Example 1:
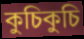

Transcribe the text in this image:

কুচিকুচি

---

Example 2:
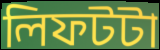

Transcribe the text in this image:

লিফটটা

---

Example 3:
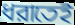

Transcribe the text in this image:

ধরাতেই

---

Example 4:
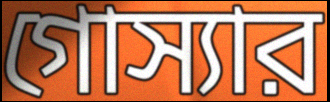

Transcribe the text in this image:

গোস্যার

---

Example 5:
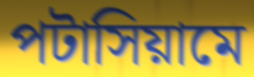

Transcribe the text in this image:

পটাসিয়ামে